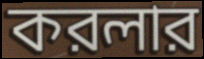
করলার